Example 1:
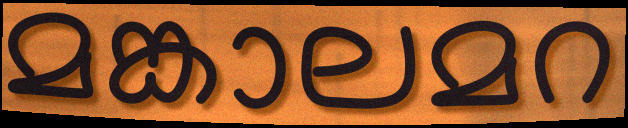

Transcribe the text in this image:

മങ്കാലമറ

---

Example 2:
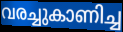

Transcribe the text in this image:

വരച്ചുകാണിച്ച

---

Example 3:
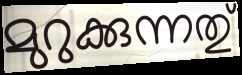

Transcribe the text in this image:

മുറുക്കുന്നതു്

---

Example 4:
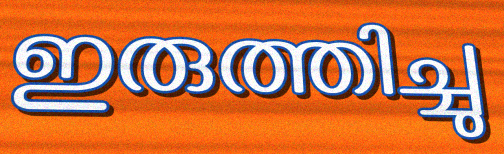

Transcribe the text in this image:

ഇരുത്തിച്ചു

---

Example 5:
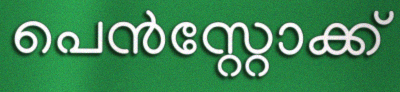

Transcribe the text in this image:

പെൻസ്റ്റോക്ക്